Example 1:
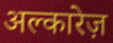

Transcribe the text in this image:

अल्कारेज़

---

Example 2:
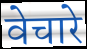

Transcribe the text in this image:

वेचारे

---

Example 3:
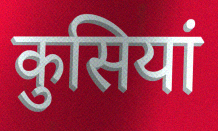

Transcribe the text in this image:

कुसियां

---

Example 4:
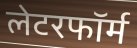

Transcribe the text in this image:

लेटरफॉर्म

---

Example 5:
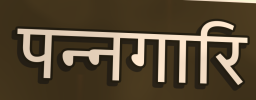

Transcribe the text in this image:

पन्नगारि